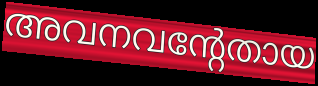
അവനവന്റേതായ